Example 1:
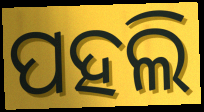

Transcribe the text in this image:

ପହଲି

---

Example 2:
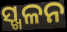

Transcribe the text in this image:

ସ୍ଖଳନ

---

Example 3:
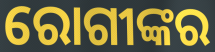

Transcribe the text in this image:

ରୋଗୀଙ୍କର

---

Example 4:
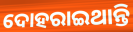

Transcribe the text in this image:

ଦୋହରାଇଥାନ୍ତି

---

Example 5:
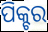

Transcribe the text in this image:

ପିକ୍ଚର